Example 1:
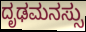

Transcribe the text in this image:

ದೃಢಮನಸ್ಸು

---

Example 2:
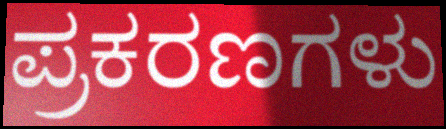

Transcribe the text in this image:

ಪ್ರಕರಣಗಳು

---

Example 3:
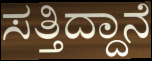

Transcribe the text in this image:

ಸತ್ತಿದ್ದಾನೆ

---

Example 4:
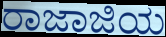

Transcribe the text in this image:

ರಾಜಾಜಿಯ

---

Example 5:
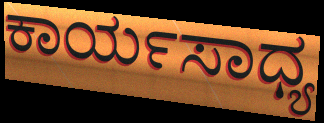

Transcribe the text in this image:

ಕಾರ್ಯಸಾಧ್ಯ